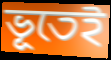
ভূতেই